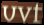
uvt